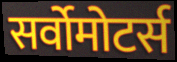
सर्वोमोटर्स